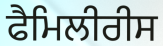
ਫੈਮਿਲੀਰੀਸ